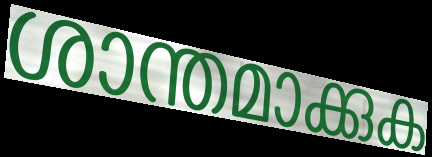
ശാന്തമാക്കുക